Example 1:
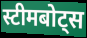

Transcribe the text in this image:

स्टीमबोट्स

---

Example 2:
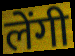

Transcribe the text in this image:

लेंगी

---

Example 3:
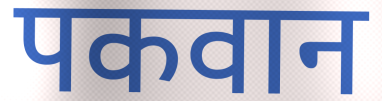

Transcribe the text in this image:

पकवान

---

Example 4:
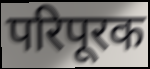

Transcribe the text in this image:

परिपूरक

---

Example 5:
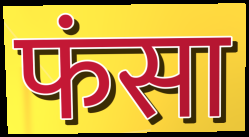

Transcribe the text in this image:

फंसा